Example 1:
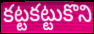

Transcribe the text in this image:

కట్టకట్టుకొని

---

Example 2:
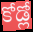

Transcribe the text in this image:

కోడ్లో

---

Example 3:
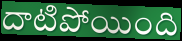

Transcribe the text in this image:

దాటిపోయింది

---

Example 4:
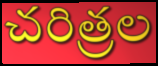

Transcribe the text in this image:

చరిత్రల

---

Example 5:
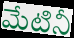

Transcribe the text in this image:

మేటినీ